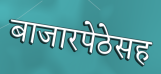
बाजारपेठेसह